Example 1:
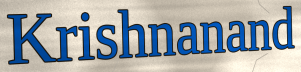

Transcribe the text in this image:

Krishnanand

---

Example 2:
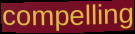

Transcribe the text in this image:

compelling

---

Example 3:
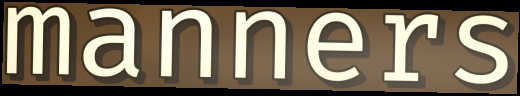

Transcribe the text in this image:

manners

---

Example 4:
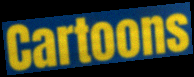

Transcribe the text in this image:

Cartoons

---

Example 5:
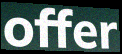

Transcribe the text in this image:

offer